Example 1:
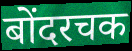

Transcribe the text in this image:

बोंदरचक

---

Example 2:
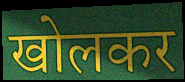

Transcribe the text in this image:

खोलकर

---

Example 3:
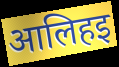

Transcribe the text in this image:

आलिहइ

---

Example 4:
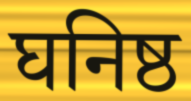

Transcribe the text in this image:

घनिष्ठ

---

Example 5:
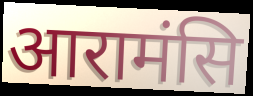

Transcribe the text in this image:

आरामंसि